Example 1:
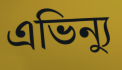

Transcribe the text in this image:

এভিন্যু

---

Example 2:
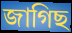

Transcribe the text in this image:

জাগিছ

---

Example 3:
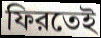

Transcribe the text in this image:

ফিরতেই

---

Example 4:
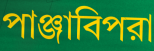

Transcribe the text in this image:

পাঞ্জাবিপরা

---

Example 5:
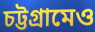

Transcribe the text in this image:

চট্টগ্রামেও